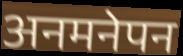
अनमनेपन